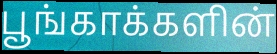
பூங்காக்களின்